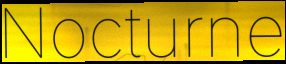
Nocturne